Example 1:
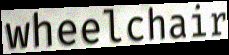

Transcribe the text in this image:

wheelchair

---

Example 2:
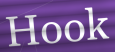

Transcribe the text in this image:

Hook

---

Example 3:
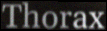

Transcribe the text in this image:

Thorax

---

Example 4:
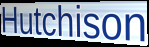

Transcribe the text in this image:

Hutchison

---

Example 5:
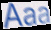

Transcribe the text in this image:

Aaa